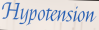
Hypotension